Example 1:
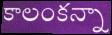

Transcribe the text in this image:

కాలంకన్నా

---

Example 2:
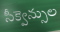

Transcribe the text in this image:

సీక్వెన్సుల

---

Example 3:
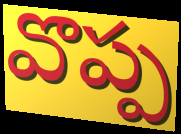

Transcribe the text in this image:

వొప్ప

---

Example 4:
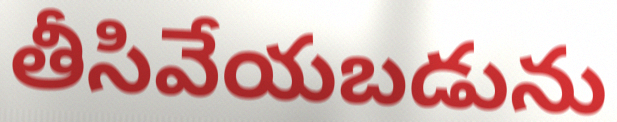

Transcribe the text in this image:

తీసివేయబడును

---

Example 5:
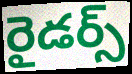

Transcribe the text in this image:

రైడర్స్